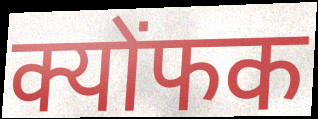
क्योंफक